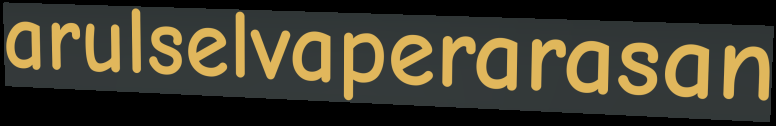
arulselvaperarasan